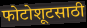
फोटोशूटसाठी